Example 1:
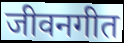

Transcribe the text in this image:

जीवनगीत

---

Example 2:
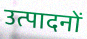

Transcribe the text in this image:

उत्पादनों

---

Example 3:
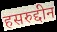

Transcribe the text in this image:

हसरुद्दीन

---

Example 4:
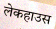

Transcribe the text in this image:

लेकहाउस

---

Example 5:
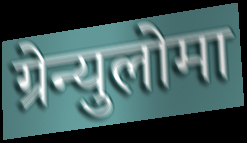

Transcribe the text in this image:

ग्रेन्युलोमा